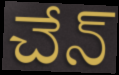
చేన్